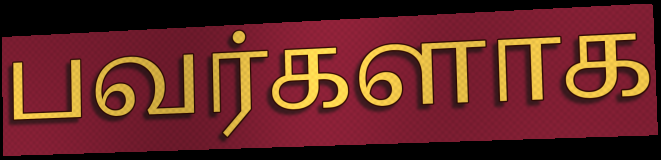
பவர்களாக